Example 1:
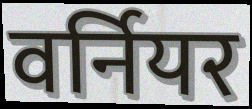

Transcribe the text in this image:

वर्नियर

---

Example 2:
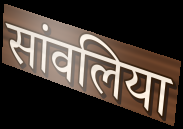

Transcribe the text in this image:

सांवलिया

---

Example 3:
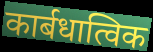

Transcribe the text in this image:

कार्बधात्विक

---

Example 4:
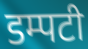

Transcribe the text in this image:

डम्पटी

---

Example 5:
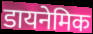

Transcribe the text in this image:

डायनेमिक